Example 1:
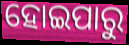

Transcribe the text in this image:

ହୋଇପାରୁ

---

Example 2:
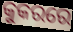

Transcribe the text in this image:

କୁକରରେ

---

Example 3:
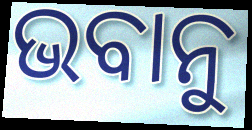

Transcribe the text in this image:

ଭବାନୁ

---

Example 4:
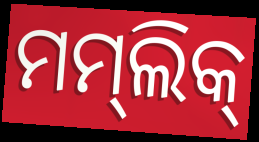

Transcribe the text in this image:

ମମ୍‌ଲିକ୍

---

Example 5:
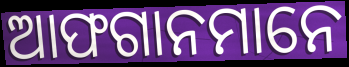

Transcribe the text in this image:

ଆଫଗାନମାନେ